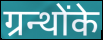
ग्रन्थोंके